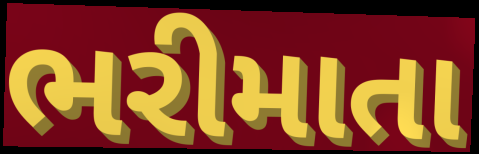
ભરીમાતા